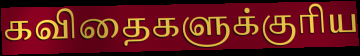
கவிதைகளுக்குரிய